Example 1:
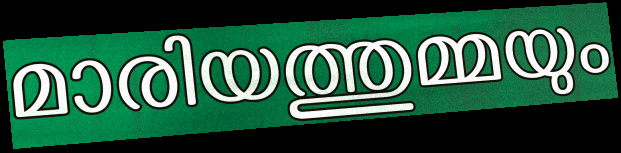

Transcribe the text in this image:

മാരിയത്തുമ്മയും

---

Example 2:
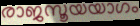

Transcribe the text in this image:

രാജസൂയയാഗം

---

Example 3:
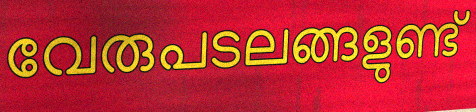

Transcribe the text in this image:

വേരുപടലങ്ങളുണ്ട്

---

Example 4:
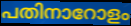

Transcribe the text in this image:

പതിനാറോളം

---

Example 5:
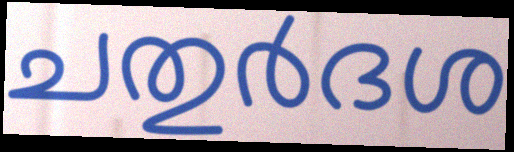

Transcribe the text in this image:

ചതുർദശ